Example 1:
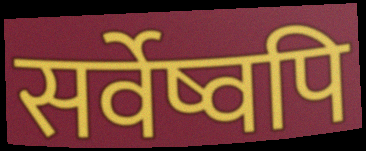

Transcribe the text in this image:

सर्वेष्वपि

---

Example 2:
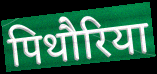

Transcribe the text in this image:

पिथौरिया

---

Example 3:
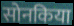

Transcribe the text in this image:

सोनकिया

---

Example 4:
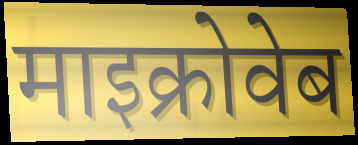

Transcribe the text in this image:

माइक्रोवेब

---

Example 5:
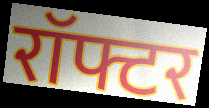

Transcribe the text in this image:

रॉफ्टर